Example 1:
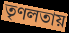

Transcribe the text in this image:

তৃণলতায়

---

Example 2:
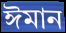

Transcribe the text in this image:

ঈমান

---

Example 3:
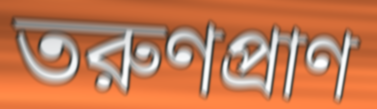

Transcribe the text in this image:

তরুণপ্রাণ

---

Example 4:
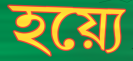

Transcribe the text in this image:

হয়্যে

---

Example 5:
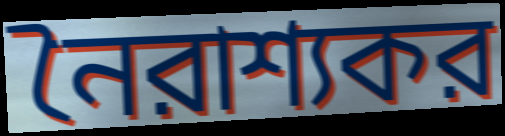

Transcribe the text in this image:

নৈরাশ্যকর